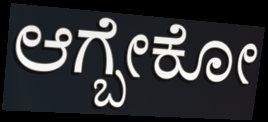
ಆಗ್ಬೇಕೋ